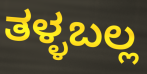
ತಳ್ಳಬಲ್ಲ